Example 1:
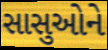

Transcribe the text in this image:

સાસુઓને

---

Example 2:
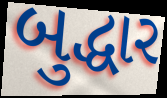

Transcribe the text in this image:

બુદ્ધાર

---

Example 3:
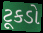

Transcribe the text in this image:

ટૂકડો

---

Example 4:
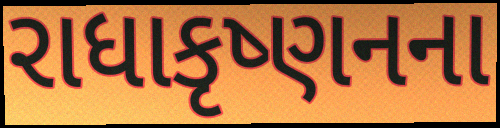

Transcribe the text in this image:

રાધાકૃષ્ણનના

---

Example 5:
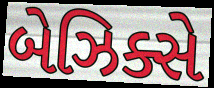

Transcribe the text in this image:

બેઝિક્સે